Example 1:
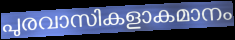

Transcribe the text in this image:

പുരവാസികളാകമാനം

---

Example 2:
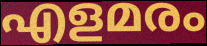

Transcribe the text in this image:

എളമരം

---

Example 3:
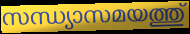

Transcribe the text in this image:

സന്ധ്യാസമയത്തു്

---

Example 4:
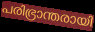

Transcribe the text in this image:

പരിഭ്രാന്തരായി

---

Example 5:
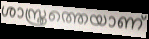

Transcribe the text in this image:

ശാസ്ത്രത്തെയാണ്